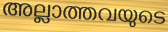
അല്ലാത്തവയുടെ